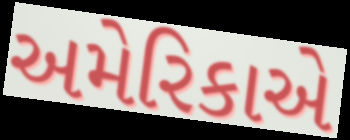
અમેરિકાએ